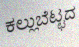
ಕಲ್ಲುಬೆಟ್ಟದ